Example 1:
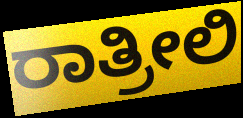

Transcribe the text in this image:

ರಾತ್ರೀಲಿ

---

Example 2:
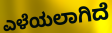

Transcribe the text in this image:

ಎಳೆಯಲಾಗಿದೆ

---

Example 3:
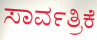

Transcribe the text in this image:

ಸಾರ್ವತ್ರಿಕೆ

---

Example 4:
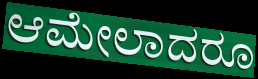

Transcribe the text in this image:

ಆಮೇಲಾದರೂ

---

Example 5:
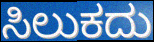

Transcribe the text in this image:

ಸಿಲುಕದು